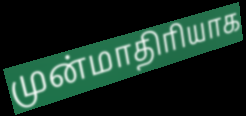
முன்மாதிரியாக